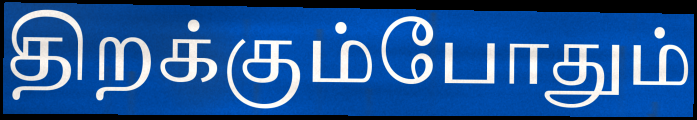
திறக்கும்போதும்